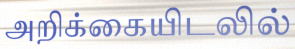
அறிக்கையிடலில்